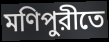
মণিপুরীতে